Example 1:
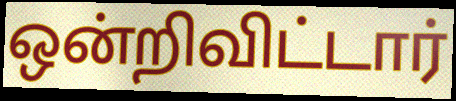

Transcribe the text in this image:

ஒன்றிவிட்டார்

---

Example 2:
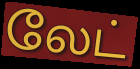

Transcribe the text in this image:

லேட்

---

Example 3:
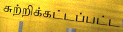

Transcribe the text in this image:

சுற்றிக்கட்டப்பட்ட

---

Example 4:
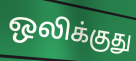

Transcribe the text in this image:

ஒலிக்குது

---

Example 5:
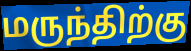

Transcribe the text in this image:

மருந்திற்கு